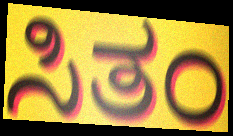
ಸಿತಂ